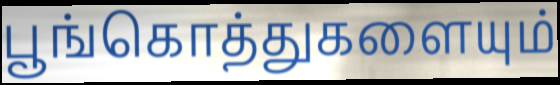
பூங்கொத்துகளையும்